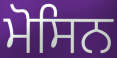
ਮੋਸਿਨ